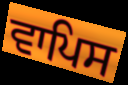
ਵਾਪਿਸ